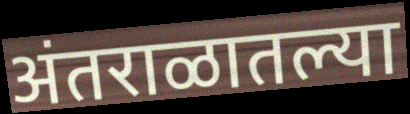
अंतराळातल्या